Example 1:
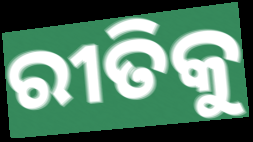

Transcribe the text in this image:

ରୀତିକୁ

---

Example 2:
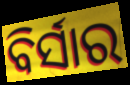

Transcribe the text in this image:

ବିର୍ସାର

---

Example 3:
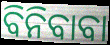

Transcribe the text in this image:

ବିନିବାବା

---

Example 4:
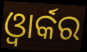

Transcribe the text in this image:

ଓ୍ବାର୍କର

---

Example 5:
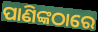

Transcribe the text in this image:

ପାଣିଙ୍କଠାରେ